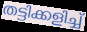
തട്ടിക്കളിച്ച്